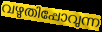
വഴുതിപ്പോവുന്ന